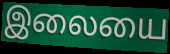
இலையை